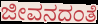
ಜೀವನದಂತೆ